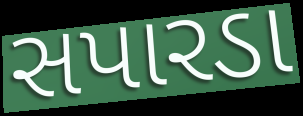
સપારડા